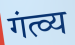
गंत्व्य